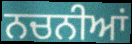
ਨਚਨੀਆਂ